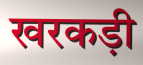
खरकड़ी